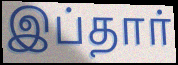
இப்தார்